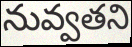
నువ్వతని